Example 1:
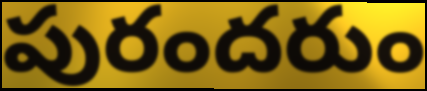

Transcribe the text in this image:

పురందరుం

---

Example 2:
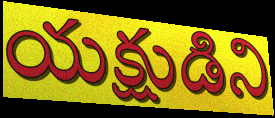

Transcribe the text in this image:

యక్షుడిని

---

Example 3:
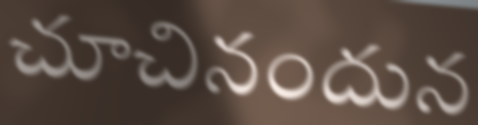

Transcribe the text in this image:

చూచినందున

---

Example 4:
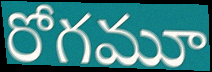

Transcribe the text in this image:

రోగమూ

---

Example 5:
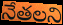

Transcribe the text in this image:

నేతలని